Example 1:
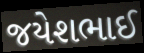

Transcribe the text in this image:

જયેશભાઈ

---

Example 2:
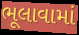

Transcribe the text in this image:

ભૂલાવામાં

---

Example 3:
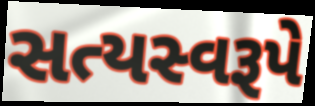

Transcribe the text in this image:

સત્યસ્વરૂપે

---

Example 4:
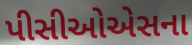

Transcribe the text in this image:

પીસીઓએસના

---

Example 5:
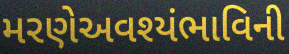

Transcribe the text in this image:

મરણેઅવશ્યંભાવિની